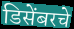
डिसेंबरचे